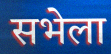
सभेला